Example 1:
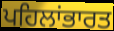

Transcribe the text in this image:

ਪਹਿਲਾਂਭਾਰਤ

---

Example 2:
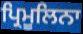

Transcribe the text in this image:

ਪ੍ਰਿਮੂਲਿਨਾ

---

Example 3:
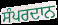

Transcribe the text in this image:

ਸੰਪਰਦਾਨ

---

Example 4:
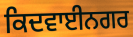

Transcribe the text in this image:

ਕਿਦਵਾਈਨਗਰ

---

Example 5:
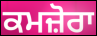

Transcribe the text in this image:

ਕਮਜ਼ੋਰਾ